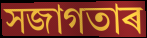
সজাগতাৰ